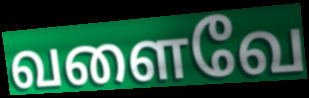
வளைவே